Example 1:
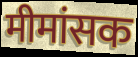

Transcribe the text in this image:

मीमांसक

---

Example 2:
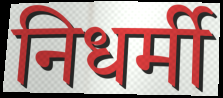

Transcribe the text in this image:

निधर्मी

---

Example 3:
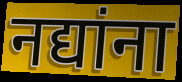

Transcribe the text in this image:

नद्यांना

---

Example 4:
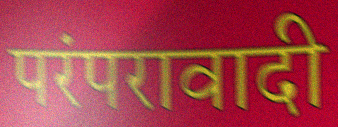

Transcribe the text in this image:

परंपरावादी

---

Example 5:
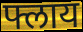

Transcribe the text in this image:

फ्लाय